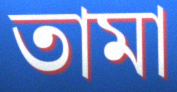
তামা